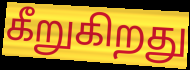
கீறுகிறது